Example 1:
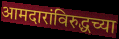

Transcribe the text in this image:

आमदारांविरुद्धच्या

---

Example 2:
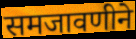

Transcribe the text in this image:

समजावणीने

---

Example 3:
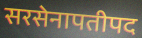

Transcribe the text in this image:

सरसेनापतीपद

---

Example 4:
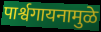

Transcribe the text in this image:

पार्श्वगायनामुळे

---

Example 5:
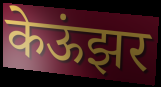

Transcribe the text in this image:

केऊंझर